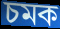
চমক